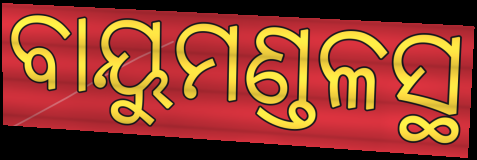
ବାୟୁମଣ୍ଡଳସ୍ଥ